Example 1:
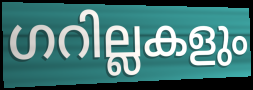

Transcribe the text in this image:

ഗറില്ലകളും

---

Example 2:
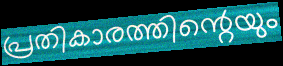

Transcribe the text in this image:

പ്രതികാരത്തിന്റെയും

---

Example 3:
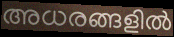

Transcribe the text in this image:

അധരങ്ങളിൽ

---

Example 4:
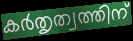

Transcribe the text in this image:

കർതൃത്വത്തിന്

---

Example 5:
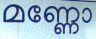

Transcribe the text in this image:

മണ്ണോ